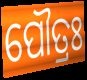
ପୌତ୍ରଃ